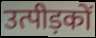
उत्पीड़कों